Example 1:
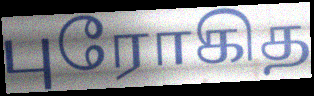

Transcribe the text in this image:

புரோகித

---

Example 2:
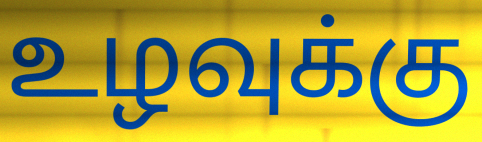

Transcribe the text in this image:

உழவுக்கு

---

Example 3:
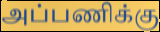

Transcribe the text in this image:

அப்பணிக்கு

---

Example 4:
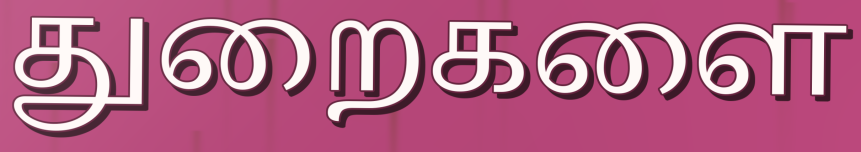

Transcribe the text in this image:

துறைகளை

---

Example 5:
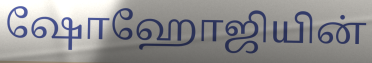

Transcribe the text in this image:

ஷோஹோஜியின்